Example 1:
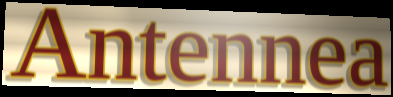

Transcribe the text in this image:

Antennea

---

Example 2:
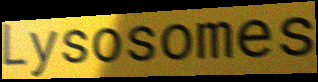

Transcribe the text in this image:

Lysosomes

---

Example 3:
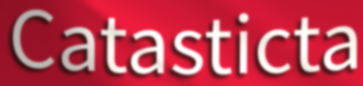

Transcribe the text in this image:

Catasticta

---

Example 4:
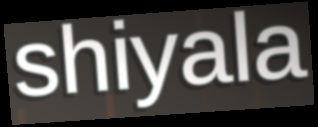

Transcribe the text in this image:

shiyala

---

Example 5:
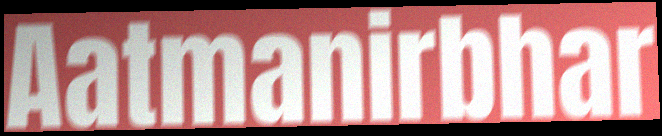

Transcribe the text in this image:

Aatmanirbhar